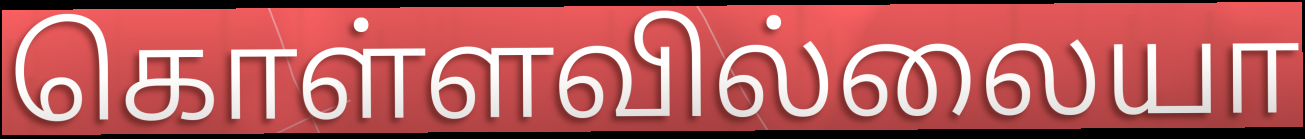
கொள்ளவில்லையா